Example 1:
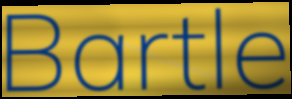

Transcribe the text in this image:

Bartle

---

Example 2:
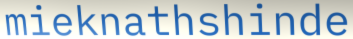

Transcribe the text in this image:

mieknathshinde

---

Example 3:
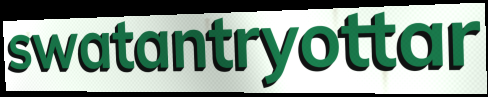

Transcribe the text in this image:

swatantryottar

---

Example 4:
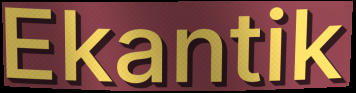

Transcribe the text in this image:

Ekantik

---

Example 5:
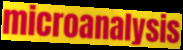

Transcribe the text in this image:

microanalysis